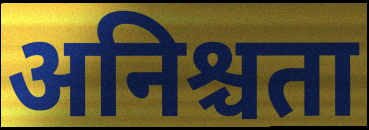
अनिश्चता